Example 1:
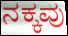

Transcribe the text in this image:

ನಕ್ಕವು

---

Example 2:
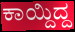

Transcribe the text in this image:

ಕಾಯ್ದಿದ್ದ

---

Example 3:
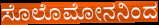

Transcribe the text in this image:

ಸೊಲೊಮೋನನಿಂದ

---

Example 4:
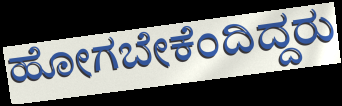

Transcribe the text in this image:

ಹೋಗಬೇಕೆಂದಿದ್ದರು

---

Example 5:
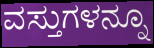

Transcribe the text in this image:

ವಸ್ತುಗಳನ್ನೂ